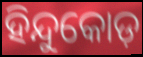
ହିନ୍ଦୁକୋଡ଼